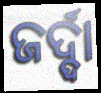
ଜର୍ଦ୍ଦା